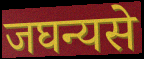
जघन्यसे